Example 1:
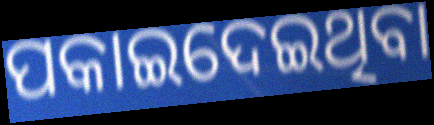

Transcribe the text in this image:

ପକାଇଦେଇଥିବା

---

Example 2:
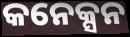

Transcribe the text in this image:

କନେକ୍ସନ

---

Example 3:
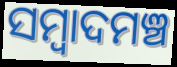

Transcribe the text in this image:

ସମ୍ୱାଦମଞ୍ଚ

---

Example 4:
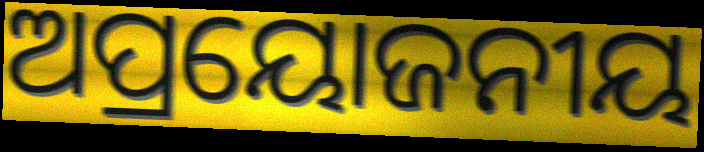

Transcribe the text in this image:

ଅପ୍ରୟୋଜନୀୟ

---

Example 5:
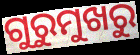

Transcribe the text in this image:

ଗୁରୁମୁଖରୁ